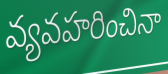
వ్యవహరించినా